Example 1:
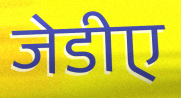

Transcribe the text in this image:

जेडीए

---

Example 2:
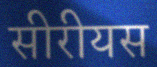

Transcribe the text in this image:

सीरीयस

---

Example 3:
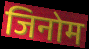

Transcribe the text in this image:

जिनोम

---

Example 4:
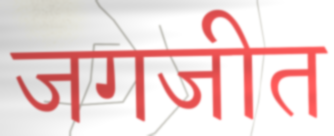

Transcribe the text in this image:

जगजीत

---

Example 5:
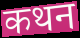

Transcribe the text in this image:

कथन